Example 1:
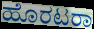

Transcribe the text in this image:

ಹೊರಟರಾ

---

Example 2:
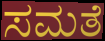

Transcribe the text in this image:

ಸಮತೆ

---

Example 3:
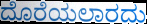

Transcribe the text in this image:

ದೊರೆಯಲಾರದು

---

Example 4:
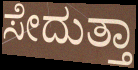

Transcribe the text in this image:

ಸೇದುತ್ತಾ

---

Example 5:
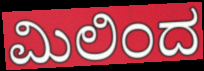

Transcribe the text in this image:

ಮಿಲಿಂದ